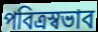
পবিত্রস্বভাব